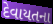
દેવાયતના